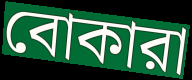
বোকারা